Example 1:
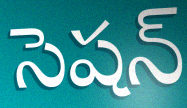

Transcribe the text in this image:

సెషన్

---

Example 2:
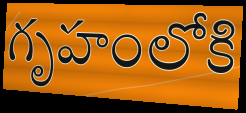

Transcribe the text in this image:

గృహంలోకి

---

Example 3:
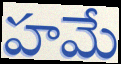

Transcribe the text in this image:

హమే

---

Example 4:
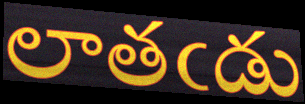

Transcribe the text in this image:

లాతఁడు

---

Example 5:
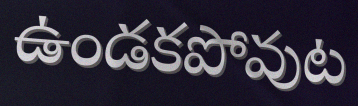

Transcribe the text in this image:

ఉండకపోవుట